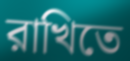
রাখিতে